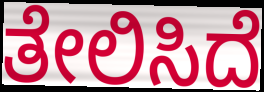
ತೇಲಿಸಿದೆ